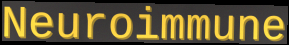
Neuroimmune